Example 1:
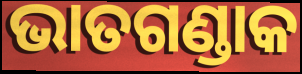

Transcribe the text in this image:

ଭାତଗଣ୍ଡାକ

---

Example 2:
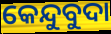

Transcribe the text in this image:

କେନ୍ଦୁବୁଦା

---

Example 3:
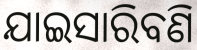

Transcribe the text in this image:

ଯାଇସାରିବଣି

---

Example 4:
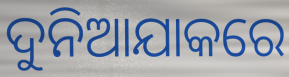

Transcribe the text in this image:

ଦୁନିଆଯାକରେ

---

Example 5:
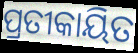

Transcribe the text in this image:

ପ୍ରତୀକାୟିତ